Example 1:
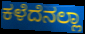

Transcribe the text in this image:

ಕಳೆದೆನಲ್ಲಾ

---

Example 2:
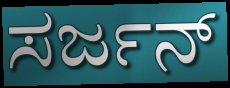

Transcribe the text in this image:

ಸರ್ಜನ್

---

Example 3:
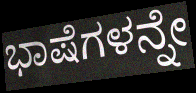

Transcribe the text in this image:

ಭಾಷೆಗಳನ್ನೇ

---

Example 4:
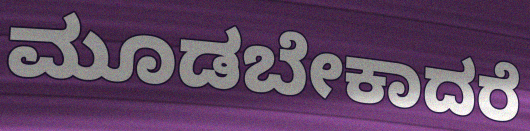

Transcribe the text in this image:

ಮೂಡಬೇಕಾದರೆ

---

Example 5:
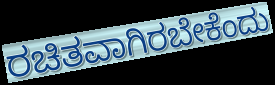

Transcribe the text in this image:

ರಚಿತವಾಗಿರಬೇಕೆಂದು